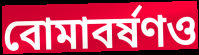
বোমাবর্ষণও